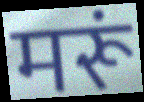
मरूं